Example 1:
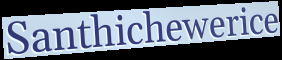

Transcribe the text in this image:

Santhichewerice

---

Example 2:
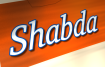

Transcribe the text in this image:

Shabda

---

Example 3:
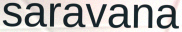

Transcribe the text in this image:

saravana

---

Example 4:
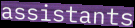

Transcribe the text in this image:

assistants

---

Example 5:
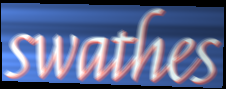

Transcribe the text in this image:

swathes